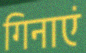
गिनाएं